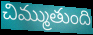
చిమ్ముతుంది